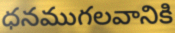
ధనముగలవానికి